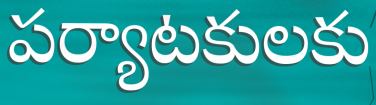
పర్యాటకులకు